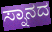
ಸ್ನಾನದ